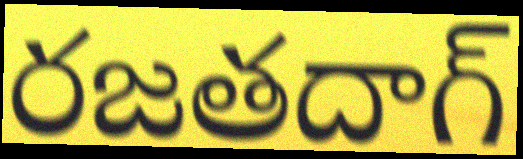
రజతదాగ్